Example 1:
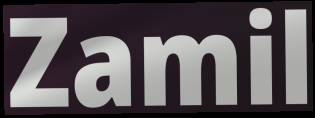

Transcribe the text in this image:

Zamil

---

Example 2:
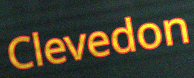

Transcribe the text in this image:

Clevedon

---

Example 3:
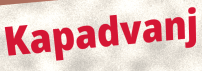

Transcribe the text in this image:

Kapadvanj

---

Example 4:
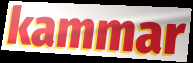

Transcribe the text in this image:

kammar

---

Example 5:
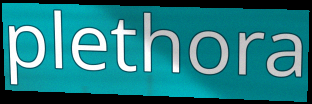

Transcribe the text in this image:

plethora